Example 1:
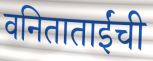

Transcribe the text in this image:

वनिताताईंची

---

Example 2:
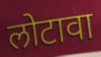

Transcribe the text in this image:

लोटावा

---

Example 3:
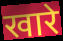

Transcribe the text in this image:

खारे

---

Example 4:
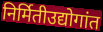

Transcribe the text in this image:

निर्मितीउद्योगांत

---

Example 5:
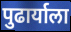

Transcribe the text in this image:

पुढार्याला